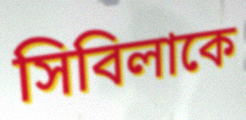
সিবিলাকে